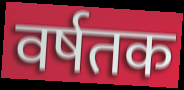
वर्षतक